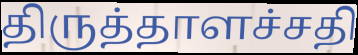
திருத்தாளச்சதி